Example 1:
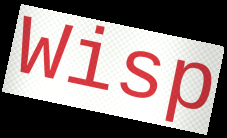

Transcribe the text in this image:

Wisp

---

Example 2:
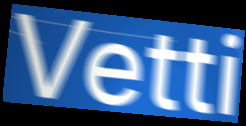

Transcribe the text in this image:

Vetti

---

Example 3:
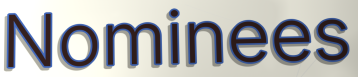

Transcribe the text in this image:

Nominees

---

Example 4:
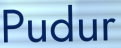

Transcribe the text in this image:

Pudur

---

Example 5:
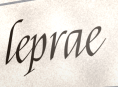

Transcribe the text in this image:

leprae